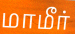
மாமீர்